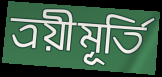
ত্ৰয়ীমূৰ্তি